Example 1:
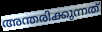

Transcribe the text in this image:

അന്തരിക്കുന്നത്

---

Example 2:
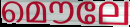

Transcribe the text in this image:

മൌലേ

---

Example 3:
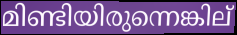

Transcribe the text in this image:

മിണ്ടിയിരുന്നെങ്കില്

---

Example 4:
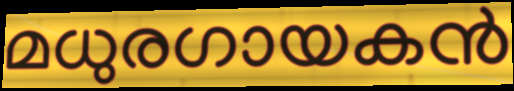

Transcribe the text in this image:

മധുരഗായകൻ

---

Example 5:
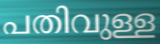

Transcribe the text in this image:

പതിവുള്ള